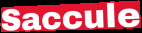
Saccule